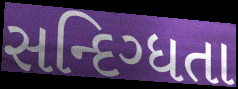
સન્દિગ્ધતા